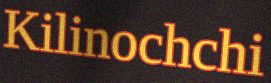
Kilinochchi